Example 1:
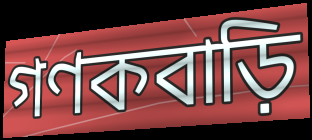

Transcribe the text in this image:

গণকবাড়ি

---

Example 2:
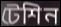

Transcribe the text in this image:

টেশিন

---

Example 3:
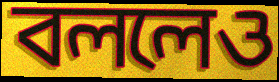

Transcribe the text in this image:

বললেও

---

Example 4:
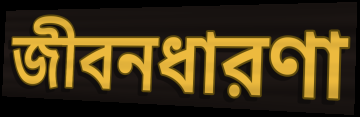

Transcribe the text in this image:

জীবনধারণা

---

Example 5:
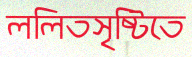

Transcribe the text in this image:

ললিতসৃষ্টিতে